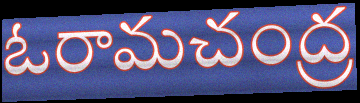
ఓరామచంద్ర